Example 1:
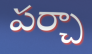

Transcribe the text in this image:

పర్చా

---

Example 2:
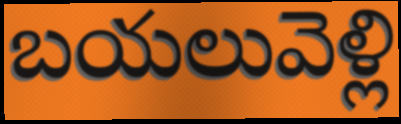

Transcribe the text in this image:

బయలువెళ్లి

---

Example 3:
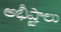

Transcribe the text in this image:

అభీష్టాలు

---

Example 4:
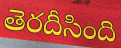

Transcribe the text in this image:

తెరదీసింది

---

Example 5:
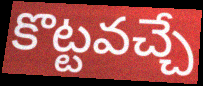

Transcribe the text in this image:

కొట్టవచ్చే